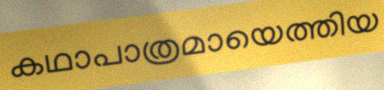
കഥാപാത്രമായെത്തിയ